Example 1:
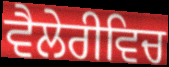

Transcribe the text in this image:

ਵੈਲੇਰੀਵਿਚ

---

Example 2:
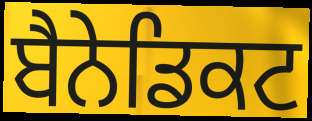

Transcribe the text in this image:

ਬੈਨੇਡਿਕਟ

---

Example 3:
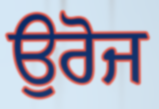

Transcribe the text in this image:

ਉਰੋਜ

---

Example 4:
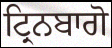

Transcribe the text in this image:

ਟ੍ਰਿਨਬਾਗੋ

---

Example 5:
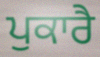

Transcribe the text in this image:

ਪੁਕਾਰੈ